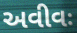
અવીવઃ